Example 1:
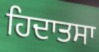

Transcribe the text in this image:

ਹਿਦਾਤਸਾ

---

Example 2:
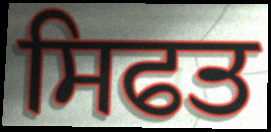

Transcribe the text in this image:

ਸਿਫਤ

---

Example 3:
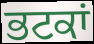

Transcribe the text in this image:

ਭਟਕਾਂ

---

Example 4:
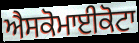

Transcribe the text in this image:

ਐਸਕੋਮਾਈਕੋਟਾ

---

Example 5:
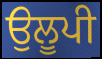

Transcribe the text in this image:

ਉਲੂਪੀ